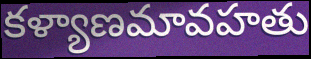
కళ్యాణమావహతు